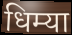
धिम्या